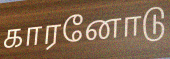
காரனோடு